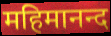
महिमानन्द